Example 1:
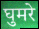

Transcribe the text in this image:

घुमरे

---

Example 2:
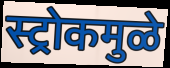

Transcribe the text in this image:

स्ट्रोकमुळे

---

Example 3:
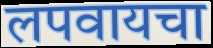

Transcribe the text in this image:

लपवायचा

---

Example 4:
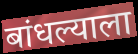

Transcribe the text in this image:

बांधल्याला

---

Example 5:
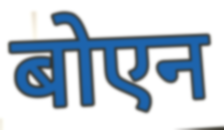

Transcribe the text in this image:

बोएन